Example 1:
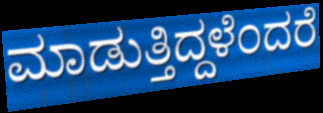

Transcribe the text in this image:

ಮಾಡುತ್ತಿದ್ದಳೆಂದರೆ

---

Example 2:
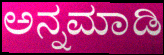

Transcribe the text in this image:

ಅನ್ನಮಾಡಿ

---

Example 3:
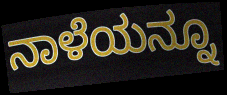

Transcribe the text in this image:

ನಾಳೆಯನ್ನೂ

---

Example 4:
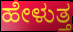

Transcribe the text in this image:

ಹೇಳುತ್ತ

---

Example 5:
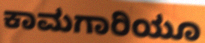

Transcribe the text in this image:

ಕಾಮಗಾರಿಯೂ